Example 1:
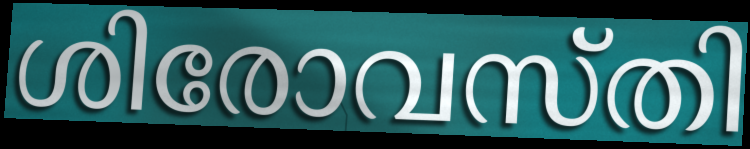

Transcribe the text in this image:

ശിരോവസ്തി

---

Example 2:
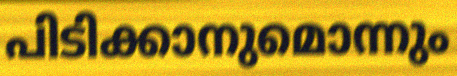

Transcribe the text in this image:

പിടിക്കാനുമൊന്നും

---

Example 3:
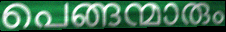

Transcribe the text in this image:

പെങ്ങന്മാരും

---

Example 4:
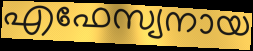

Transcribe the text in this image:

എഫേസ്യനായ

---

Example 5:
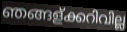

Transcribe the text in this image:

ഞങ്ങള്ക്കറിവില്ല